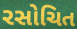
રસોચિત